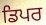
ਡਿਪਰ